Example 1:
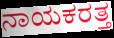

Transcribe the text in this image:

ನಾಯಕರತ್ತ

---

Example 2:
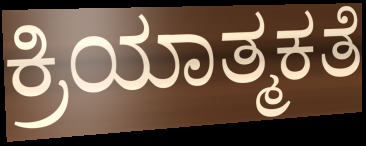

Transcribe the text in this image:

ಕ್ರಿಯಾತ್ಮಕತೆ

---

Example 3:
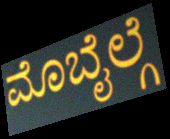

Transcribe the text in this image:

ಮೊಬೈಲ್ಗೆ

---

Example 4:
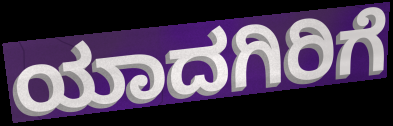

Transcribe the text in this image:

ಯಾದಗಿರಿಗೆ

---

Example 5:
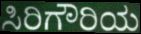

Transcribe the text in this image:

ಸಿರಿಗೌರಿಯ